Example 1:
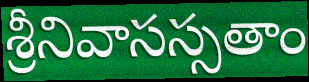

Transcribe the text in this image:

శ్రీనివాసస్సతాం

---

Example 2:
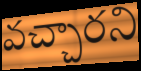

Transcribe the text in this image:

వచ్చారని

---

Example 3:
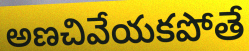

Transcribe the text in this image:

అణచివేయకపోతే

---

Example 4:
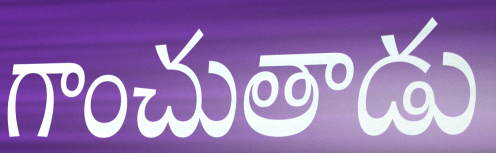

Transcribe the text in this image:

గాంచుతాడు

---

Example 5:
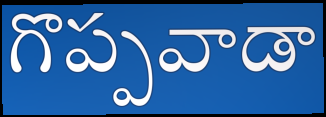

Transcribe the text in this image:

గొప్పవాడా